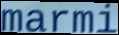
marmi